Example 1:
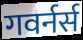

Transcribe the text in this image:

गवर्नर्स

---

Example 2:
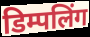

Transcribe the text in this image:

डिम्पलिंग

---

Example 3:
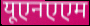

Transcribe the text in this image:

यूएनएएम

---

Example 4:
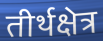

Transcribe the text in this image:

तीर्थक्षेत्र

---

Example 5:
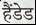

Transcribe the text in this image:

हैंडेड